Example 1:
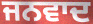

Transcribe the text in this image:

ਜਨਵਾਦ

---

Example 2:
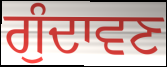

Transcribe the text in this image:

ਗੁੰਦਾਵਣ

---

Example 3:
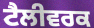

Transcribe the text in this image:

ਟੈਲੀਵਰਕ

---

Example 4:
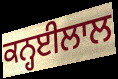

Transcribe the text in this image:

ਕਨ੍ਹਈਲਾਲ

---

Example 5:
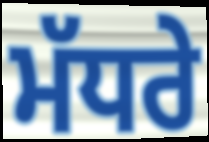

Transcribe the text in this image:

ਮੱਧਰੇ